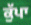
ਕੁੱਪਾ